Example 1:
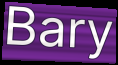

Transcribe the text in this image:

Bary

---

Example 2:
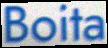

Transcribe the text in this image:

Boita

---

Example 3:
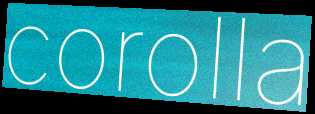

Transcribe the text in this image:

corolla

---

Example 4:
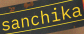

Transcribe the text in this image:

sanchika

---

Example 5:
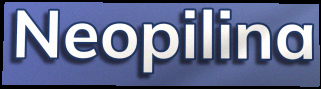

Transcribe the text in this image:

Neopilina